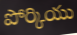
పోర్కియు